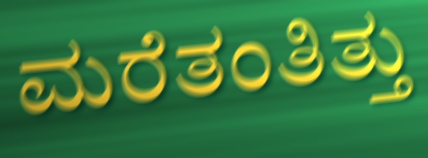
ಮರೆತಂತಿತ್ತು